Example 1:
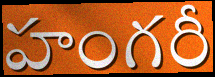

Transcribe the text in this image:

హంగరీ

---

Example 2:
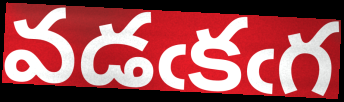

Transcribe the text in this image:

వడఁకఁగ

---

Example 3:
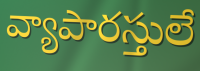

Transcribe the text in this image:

వ్యాపారస్తులే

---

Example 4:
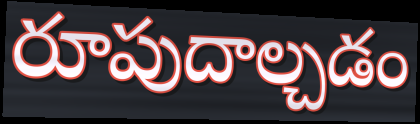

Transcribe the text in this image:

రూపుదాల్చడం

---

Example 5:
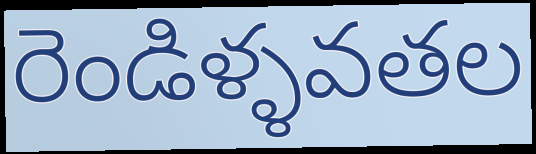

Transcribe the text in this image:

రెండిళ్ళవతల